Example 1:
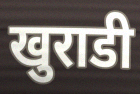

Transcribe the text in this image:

खुराडी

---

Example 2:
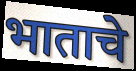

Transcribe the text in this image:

भाताचे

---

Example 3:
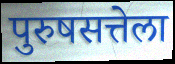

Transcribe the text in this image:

पुरुषसत्तेला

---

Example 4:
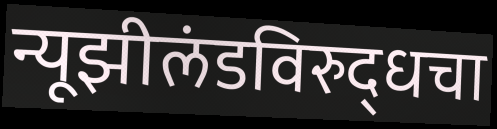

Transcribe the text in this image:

न्यूझीलंडविरुद्धचा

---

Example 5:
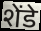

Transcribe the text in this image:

शेंडे